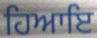
ਹਿਆਇ